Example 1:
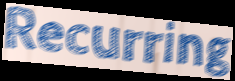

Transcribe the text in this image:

Recurring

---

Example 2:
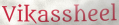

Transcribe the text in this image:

Vikassheel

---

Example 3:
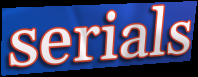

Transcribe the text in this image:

serials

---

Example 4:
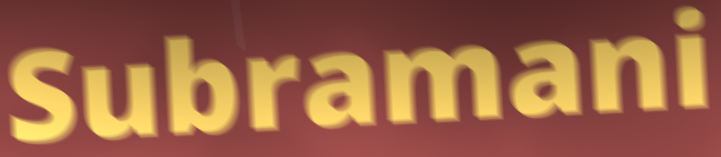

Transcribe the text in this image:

Subramani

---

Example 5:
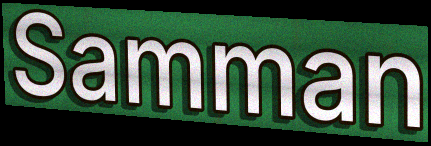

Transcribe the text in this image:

Samman